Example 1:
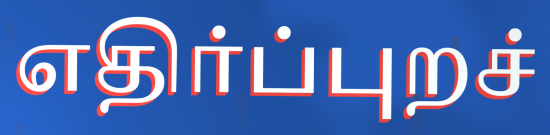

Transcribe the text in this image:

எதிர்ப்புறச்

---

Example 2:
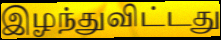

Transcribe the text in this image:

இழந்துவிட்டது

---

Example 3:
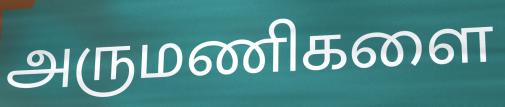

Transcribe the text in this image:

அருமணிகளை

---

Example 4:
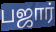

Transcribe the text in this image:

பஜார்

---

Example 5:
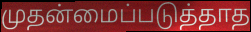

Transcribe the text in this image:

முதன்மைப்படுத்தாத